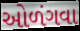
ઓળંગવા